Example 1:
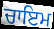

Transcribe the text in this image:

ਚਾਇਮ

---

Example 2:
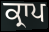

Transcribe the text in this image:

ਕ੍ਰਾਪ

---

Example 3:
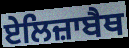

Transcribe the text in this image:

ਏਲਿਜ਼ਾਬੈਥ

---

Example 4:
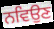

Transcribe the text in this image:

ਨਵਿਉਣ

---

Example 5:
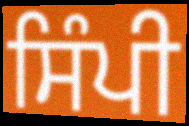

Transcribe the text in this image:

ਸਿੰਪੀ